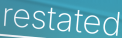
restated